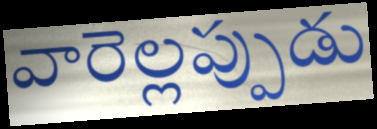
వారెల్లప్పుడు